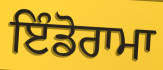
ਇੰਡੋਰਾਮਾ